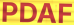
PDAF